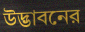
উদ্ভাবনের